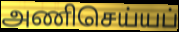
அணிசெய்யப்